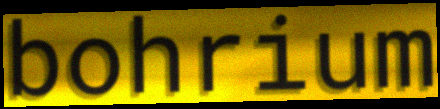
bohrium